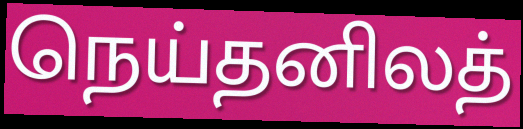
நெய்தனிலத்